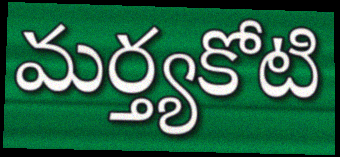
మర్త్యకోటి